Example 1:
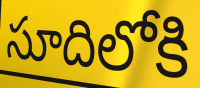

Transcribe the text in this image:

సూదిలోకి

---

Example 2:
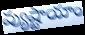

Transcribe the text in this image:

వ్యుష్టాయాం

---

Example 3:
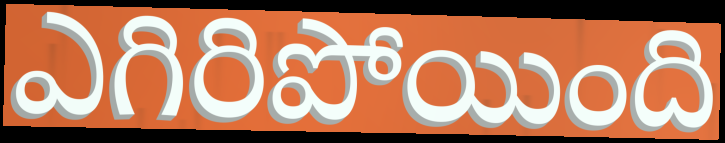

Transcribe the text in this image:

ఎగిరిపోయింది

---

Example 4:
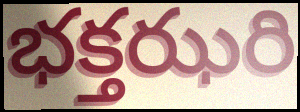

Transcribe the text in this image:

భక్తఝరి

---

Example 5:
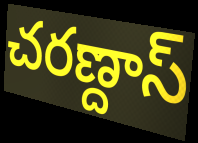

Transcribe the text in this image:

చరణ్దాస్